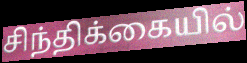
சிந்திக்கையில்